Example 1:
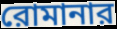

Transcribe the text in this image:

রোমানার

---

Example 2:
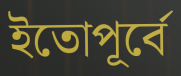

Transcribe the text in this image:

ইতোপূর্বে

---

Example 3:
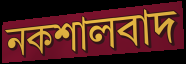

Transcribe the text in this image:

নকশালবাদ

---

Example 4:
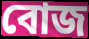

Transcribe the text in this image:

বোজ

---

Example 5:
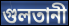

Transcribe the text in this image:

গুলতানী